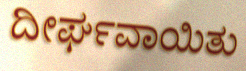
ದೀರ್ಘವಾಯಿತು